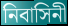
নিবাসিনী